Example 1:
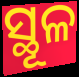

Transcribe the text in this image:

ସ୍ଥୂଳ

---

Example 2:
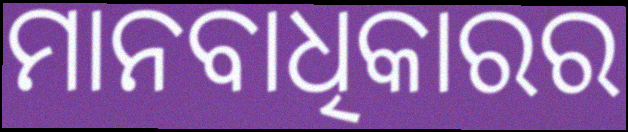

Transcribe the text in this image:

ମାନବାଧିକାରର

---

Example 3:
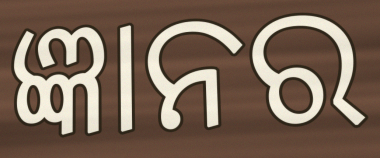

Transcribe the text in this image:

ଜ୍ଞାନର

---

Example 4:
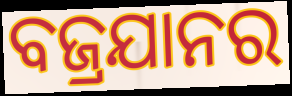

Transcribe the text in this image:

ବଜ୍ରଯାନର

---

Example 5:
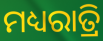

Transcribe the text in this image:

ମଧ୍ୟରାତ୍ରି